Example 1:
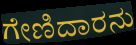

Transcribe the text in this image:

ಗೇಣಿದಾರನು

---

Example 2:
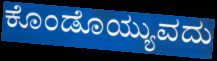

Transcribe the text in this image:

ಕೊಂಡೊಯ್ಯುವದು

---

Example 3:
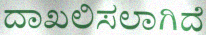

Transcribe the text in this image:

ದಾಖಲಿಸಲಾಗಿದೆ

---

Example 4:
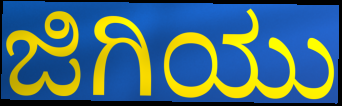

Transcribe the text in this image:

ಜಿಗಿಯು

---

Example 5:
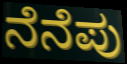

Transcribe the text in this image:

ನೆನೆಪು